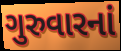
ગુરુવારનાં